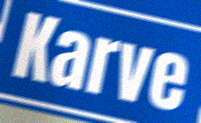
Karve